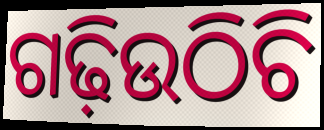
ଗଢ଼ିଉଠିଚି